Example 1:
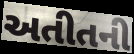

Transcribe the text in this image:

અતીતની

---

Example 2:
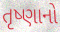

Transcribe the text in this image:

તૃષ્ણાનો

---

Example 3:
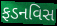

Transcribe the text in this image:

ફડનવિસ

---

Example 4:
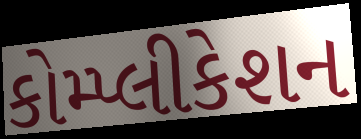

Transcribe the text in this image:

કોમ્પ્લીકેશન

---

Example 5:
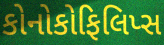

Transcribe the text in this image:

કોનોકોફિલિપ્સ